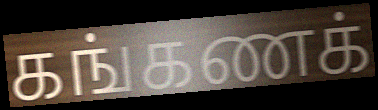
கங்கணக்